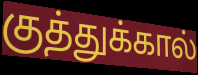
குத்துக்கால்